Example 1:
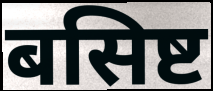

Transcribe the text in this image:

बसिष्ट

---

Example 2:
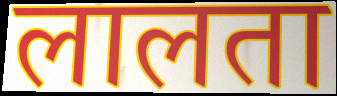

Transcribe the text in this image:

लालता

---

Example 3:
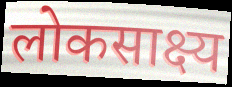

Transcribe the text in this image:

लोकसाक्ष्य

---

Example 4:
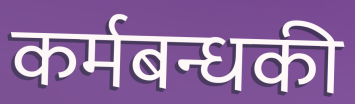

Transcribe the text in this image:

कर्मबन्धकी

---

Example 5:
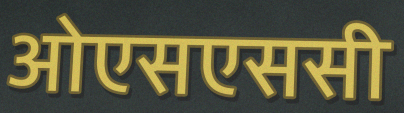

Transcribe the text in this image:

ओएसएससी